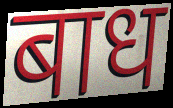
बाध